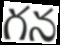
గన